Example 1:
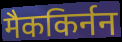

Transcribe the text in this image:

मैककिर्नन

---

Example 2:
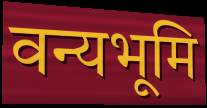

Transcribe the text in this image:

वन्यभूमि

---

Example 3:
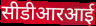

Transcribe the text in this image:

सीडीआरआई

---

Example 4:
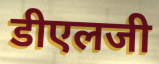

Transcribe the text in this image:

डीएलजी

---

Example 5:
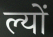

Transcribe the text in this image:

ल्यों